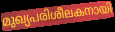
മുഖ്യപരിശീലകനായി